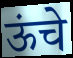
ऊंचे